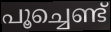
പൂച്ചെണ്ട്